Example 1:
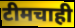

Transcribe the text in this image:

टीमचाही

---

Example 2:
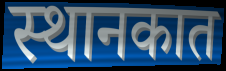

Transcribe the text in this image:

स्थानकात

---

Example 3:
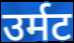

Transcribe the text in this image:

उर्मट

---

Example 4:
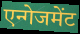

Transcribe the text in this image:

एन्गेजमेंट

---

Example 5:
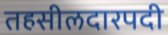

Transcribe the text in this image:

तहसीलदारपदी